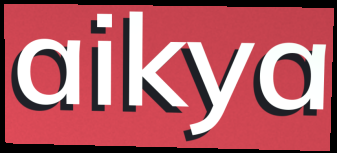
aikya